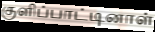
குளிப்பாட்டினாள்